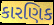
કારણિક